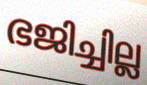
ഭജിച്ചില്ല